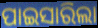
ପାଇସାରିଲା